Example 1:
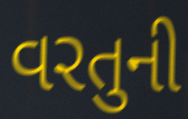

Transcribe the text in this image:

વરતુની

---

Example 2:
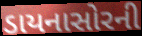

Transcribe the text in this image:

ડાયનાસોરની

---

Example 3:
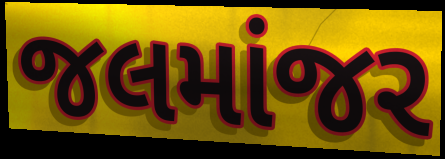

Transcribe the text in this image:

જલમાંજર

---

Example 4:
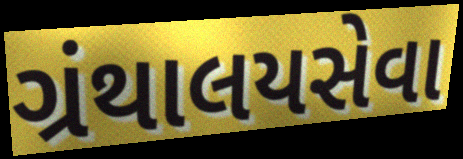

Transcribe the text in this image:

ગ્રંથાલયસેવા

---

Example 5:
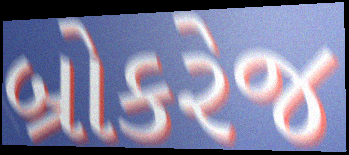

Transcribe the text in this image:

બ્રોકરેજ